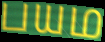
பயம